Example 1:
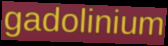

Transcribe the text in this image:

gadolinium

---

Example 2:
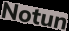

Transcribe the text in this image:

Notun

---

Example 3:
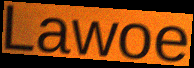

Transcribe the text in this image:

Lawoe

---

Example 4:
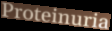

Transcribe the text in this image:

Proteinuria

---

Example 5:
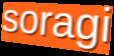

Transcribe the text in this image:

soragi